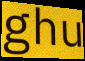
ghu